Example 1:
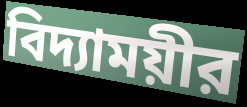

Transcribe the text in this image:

বিদ্যাময়ীর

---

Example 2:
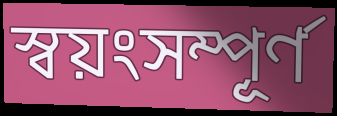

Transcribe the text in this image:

স্বয়ংসম্পূর্ণ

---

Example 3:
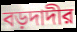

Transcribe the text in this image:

বড়দাদীর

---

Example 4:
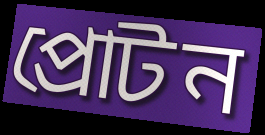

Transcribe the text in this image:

প্রোটন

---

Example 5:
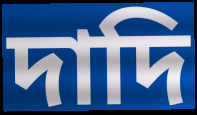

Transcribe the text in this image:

দাদি